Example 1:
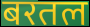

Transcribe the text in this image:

बरतल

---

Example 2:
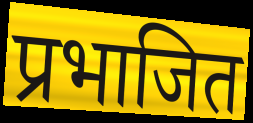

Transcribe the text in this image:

प्रभाजित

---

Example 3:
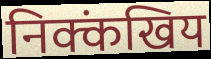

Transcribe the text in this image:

निक्कंखिय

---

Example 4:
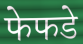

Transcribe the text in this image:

फेफडे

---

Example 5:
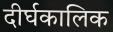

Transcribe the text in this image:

दीर्घकालिक